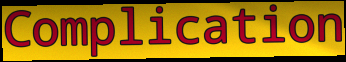
Complication